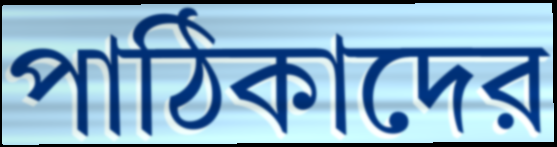
পাঠিকাদের